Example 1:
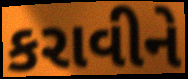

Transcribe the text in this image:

કરાવીને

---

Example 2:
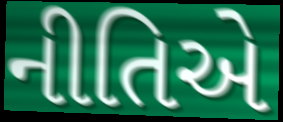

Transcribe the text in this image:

નીતિએ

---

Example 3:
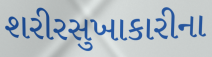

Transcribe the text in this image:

શરીરસુખાકારીના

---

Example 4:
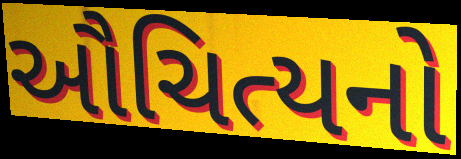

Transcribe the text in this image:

ઔચિત્યનો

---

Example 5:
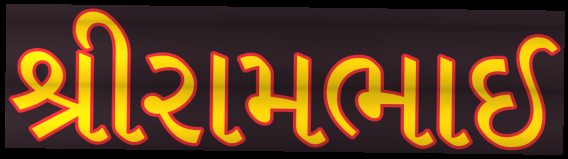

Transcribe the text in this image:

શ્રીરામભાઈ